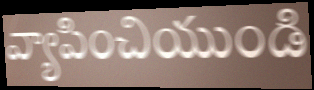
వ్యాపించియుండి